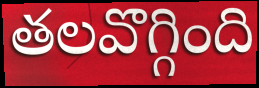
తలవొగ్గింది